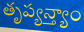
తృప్యన్త్యాం